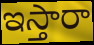
ఇస్తారా